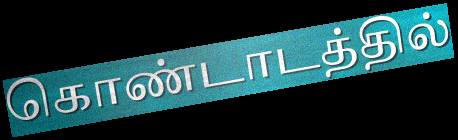
கொண்டாடத்தில்